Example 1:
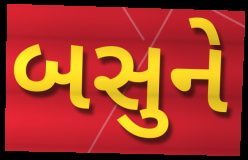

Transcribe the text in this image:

બસુને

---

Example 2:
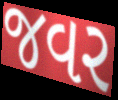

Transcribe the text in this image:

જવર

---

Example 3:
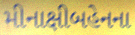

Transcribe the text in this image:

મીનાક્ષીબહેનના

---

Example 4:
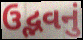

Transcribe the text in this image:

ઉદ્ભવનું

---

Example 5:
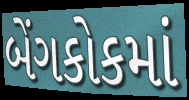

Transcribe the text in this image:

બેંગકોકમાં